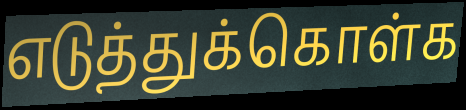
எடுத்துக்கொள்க